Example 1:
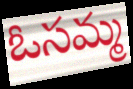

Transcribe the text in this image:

ఓసమ్మ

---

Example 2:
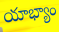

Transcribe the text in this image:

యాభ్యాం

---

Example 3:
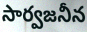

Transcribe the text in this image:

సార్వజనీన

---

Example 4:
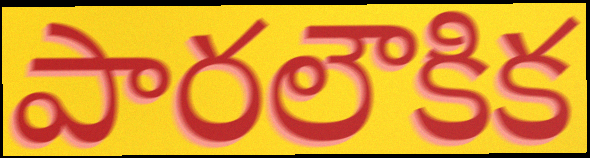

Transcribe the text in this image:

పారలౌకిక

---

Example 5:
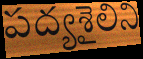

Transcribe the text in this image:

పద్యశైలిని